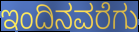
ಇಂದಿನವರೆಗು